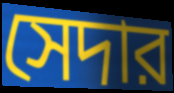
সেদার